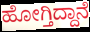
ಹೋಗ್ತಿದ್ದಾನೆ